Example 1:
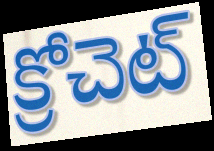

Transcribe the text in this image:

క్రోచెట్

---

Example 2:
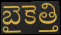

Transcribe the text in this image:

బైకెత్తి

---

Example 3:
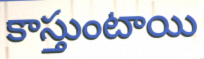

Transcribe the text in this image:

కాస్తుంటాయి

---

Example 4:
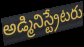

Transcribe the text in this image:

అడ్మినిస్ట్రేటరు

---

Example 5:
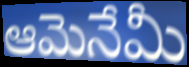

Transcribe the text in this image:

ఆమెనేమీ